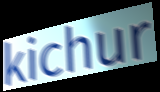
kichur